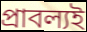
প্রাবল্যই